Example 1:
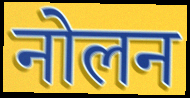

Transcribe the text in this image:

नोलन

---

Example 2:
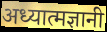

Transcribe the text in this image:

अध्यात्मज्ञानी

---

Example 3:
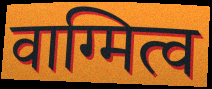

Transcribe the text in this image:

वाग्मित्व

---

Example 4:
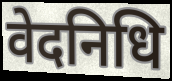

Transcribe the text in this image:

वेदनिधि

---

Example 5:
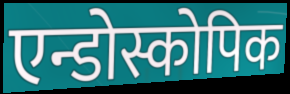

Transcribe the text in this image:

एन्डोस्कोपिक